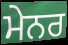
ਮੇਨਰ